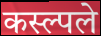
कस्ल्पले